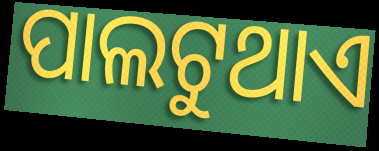
ପାଲଟୁଥାଏ